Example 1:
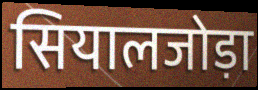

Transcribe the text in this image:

सियालजोड़ा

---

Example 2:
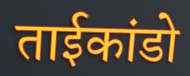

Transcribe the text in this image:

ताईकांडो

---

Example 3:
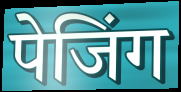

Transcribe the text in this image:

पेजिंग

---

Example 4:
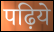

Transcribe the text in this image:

पढ़िये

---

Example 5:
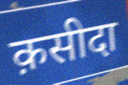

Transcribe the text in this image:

क़सीदा